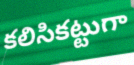
కలిసికట్టుగా